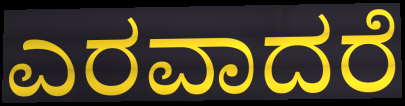
ಎರವಾದರೆ